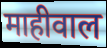
माहीवाल